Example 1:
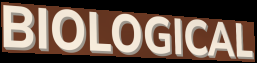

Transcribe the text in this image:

BIOLOGICAL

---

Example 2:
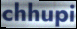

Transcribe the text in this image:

chhupi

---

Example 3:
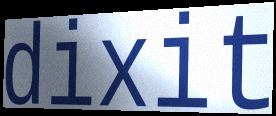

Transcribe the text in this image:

dixit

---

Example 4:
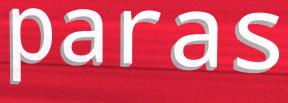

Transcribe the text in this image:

paras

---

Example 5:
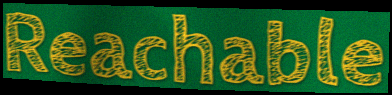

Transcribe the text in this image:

Reachable